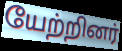
யேற்றினர்